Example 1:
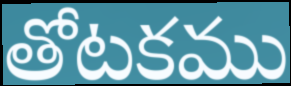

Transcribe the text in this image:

తోటకము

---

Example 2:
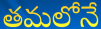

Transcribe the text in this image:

తమలోనే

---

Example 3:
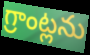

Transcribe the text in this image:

గ్రాంట్లను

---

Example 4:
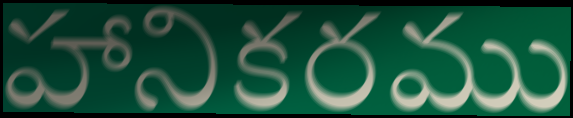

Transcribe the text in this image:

హానికరము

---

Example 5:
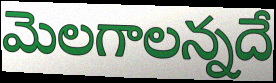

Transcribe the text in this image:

మెలగాలన్నదే